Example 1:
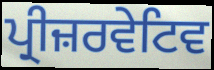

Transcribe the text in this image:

ਪ੍ਰੀਜ਼ਰਵੇਟਿਵ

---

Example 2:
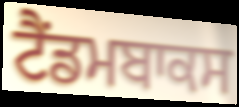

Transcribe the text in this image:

ਟੈਂਡਮਬਾਕਸ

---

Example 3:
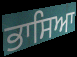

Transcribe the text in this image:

ਭਾਸਿਆ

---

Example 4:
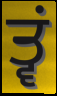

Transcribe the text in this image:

ਤ੍ਵਂ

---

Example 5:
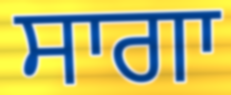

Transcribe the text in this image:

ਸਾਗਾ